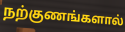
நற்குணங்களால்